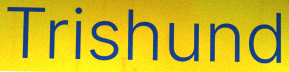
Trishund